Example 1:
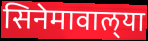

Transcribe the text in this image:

सिनेमावाल्या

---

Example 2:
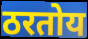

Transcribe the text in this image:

ठरतोय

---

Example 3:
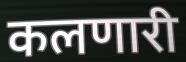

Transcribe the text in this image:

कलणारी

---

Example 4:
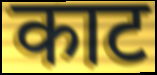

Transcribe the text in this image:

काट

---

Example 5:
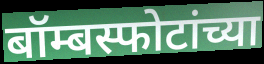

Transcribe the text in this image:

बॉम्बस्फोटांच्या